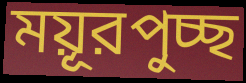
ময়ূরপুচ্ছ